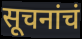
सूचनांचं